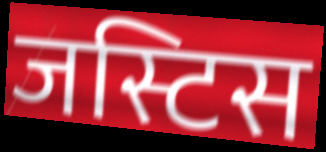
जस्‍टिस